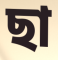
ছা